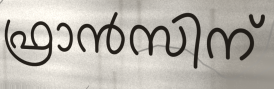
ഫ്രാൻസിന്